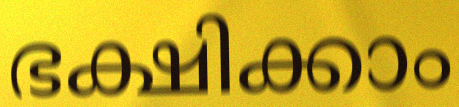
ഭക്ഷിക്കാം